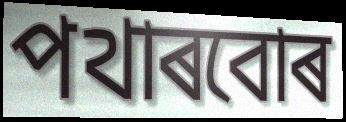
পথাৰবোৰ